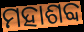
ମହାଶବ୍ଦ